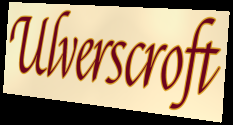
Ulverscroft